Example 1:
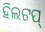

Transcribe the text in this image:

ହିଲଟପ୍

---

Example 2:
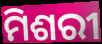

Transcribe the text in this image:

ମିଶରୀ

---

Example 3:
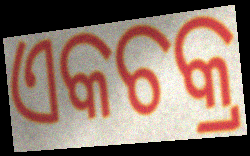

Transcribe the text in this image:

ଏକଚକ୍ର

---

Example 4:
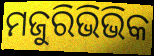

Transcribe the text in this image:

ମଜୁରିଭିଭିକ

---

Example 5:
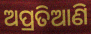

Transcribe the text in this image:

ଅପ୍ରତିଆଣି